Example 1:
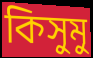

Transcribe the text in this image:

কিসুমু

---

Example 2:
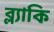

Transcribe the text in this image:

ব্ল্যাকি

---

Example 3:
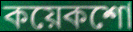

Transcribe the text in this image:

কয়েকশো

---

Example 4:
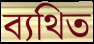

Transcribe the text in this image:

ব্যথিত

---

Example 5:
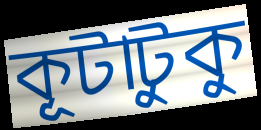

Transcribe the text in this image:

কূটাটুকু